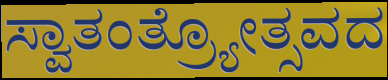
ಸ್ವಾತಂತ್ರ್ಯೋತ್ಸವದ